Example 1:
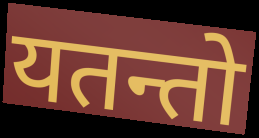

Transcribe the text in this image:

यतन्तो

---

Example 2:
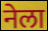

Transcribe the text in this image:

नेला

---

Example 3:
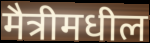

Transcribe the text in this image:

मैत्रीमधील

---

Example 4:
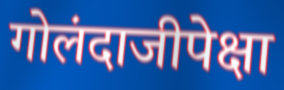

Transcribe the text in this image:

गोलंदाजीपेक्षा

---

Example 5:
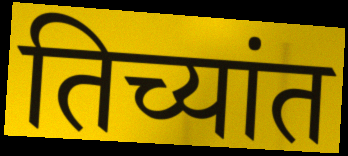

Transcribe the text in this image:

तिच्यांत